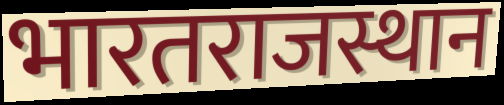
भारतराजस्थान